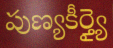
పుణ్యకీర్త్యై